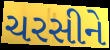
ચરસીને